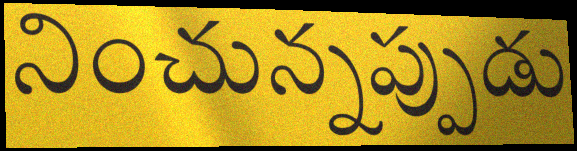
నించున్నప్పుడు